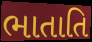
ભાતાતિ